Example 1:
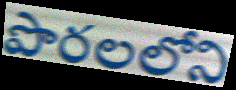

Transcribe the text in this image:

పొరలలోని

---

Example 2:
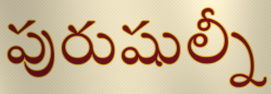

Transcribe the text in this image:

పురుషుల్నీ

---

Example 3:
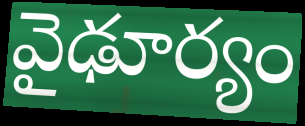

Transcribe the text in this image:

వైఢూర్యం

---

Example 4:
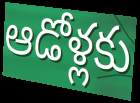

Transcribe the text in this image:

ఆడోళ్లకు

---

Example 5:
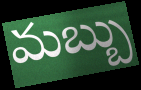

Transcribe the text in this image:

మబ్బు